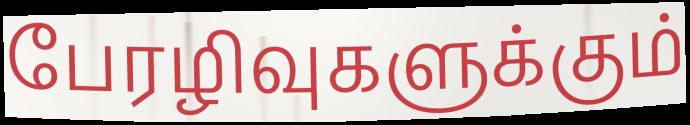
பேரழிவுகளுக்கும்